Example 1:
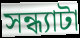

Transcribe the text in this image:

সন্ধ্যাটা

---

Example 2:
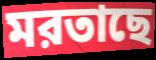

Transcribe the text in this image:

মরতাছে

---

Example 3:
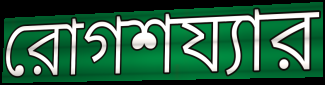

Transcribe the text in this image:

রোগশয্যার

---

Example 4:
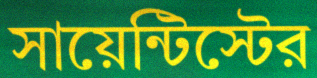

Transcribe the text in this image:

সায়েন্টিস্টের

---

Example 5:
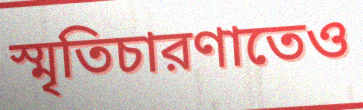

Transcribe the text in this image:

স্মৃতিচারণাতেও